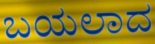
ಬಯಲಾದ